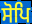
ਸੋਪਿ